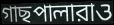
গাছপালারাও